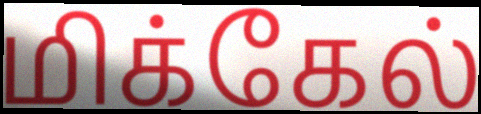
மிக்கேல்